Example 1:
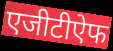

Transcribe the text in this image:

एजीटीऐफ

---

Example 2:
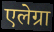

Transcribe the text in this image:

एलेग्रा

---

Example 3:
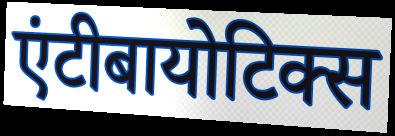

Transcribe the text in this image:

एंटीबायोटिक्स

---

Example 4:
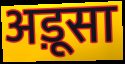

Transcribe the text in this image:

अड़ूसा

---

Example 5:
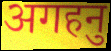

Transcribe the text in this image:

अगहनु